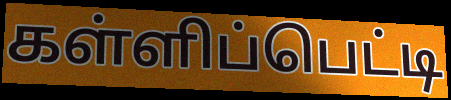
கள்ளிப்பெட்டி